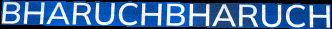
BHARUCHBHARUCH